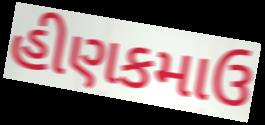
હીણકમાઉ